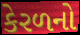
કેરળનો